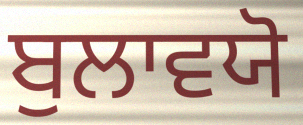
ਬੁਲਾਵਯੋ